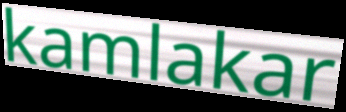
kamlakar